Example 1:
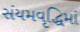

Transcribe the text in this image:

સંયમવૃદ્ધિમાં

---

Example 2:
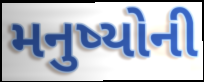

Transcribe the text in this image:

મનુષ્યોની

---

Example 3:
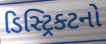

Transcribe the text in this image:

ડિસ્ટ્રિક્ટનો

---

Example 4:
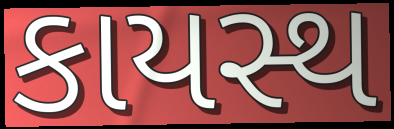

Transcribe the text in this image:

કાયસ્થ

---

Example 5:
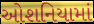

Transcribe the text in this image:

ઓશનિયામાં